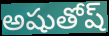
అషుతోష్